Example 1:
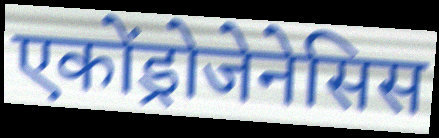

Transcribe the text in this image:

एकोंड्रोजेनेसिस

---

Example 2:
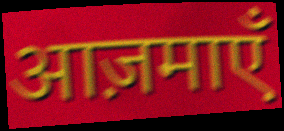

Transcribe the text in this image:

आज़माएँ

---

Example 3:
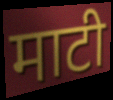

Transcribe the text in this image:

माटी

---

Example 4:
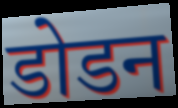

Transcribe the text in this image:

डोडन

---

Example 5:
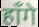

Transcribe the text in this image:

हाँगे